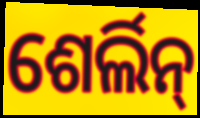
ଶେର୍ଲିନ୍